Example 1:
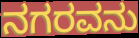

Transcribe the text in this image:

ನಗರವನು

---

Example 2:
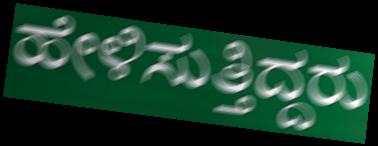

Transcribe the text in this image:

ಹೇಳಿಸುತ್ತಿದ್ದರು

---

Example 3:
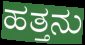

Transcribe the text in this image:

ಹತ್ತನು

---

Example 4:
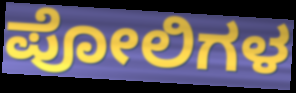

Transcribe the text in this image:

ಪೋಲಿಗಳ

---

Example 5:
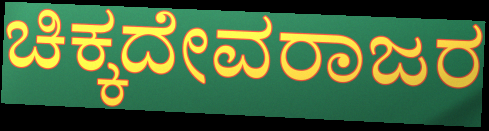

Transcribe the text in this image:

ಚಿಕ್ಕದೇವರಾಜರ